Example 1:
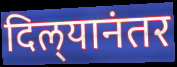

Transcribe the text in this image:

दिल्यानंतर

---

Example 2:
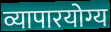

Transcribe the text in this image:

व्यापारयोग्य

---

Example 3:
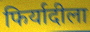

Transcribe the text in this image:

फिर्यादीला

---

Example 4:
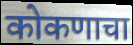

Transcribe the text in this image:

कोकणाचा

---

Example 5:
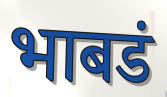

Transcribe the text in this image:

भाबडं